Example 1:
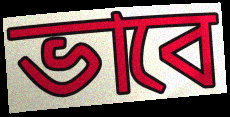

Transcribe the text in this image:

ভাবে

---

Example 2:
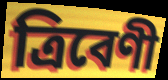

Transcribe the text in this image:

ত্রিবেণী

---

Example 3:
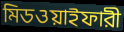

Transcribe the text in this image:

মিডওয়াইফারী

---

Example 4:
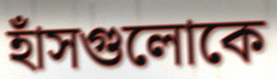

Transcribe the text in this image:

হাঁসগুলোকে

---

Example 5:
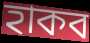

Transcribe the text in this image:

হাকব